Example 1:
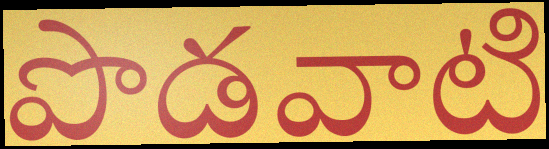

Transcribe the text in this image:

పొడవాటి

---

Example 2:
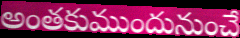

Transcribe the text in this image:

అంతకుముందునుంచే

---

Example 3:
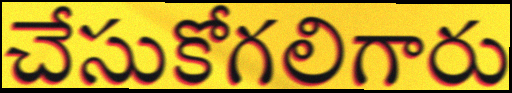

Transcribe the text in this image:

చేసుకోగలిగారు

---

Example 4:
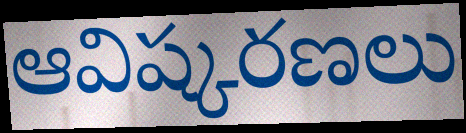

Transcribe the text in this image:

ఆవిష్కరణలు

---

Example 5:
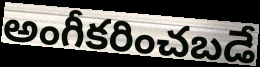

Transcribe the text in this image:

అంగీకరించబడే